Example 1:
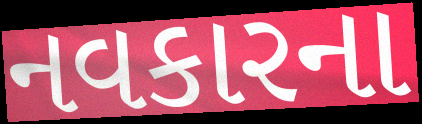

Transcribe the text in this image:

નવકારના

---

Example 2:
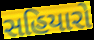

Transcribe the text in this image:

સહિયારો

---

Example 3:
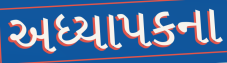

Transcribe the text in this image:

અધ્યાપકના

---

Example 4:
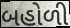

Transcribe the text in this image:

બહોળી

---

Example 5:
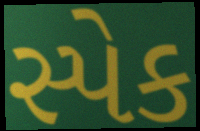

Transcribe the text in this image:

સ્પેક